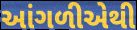
આંગળીએથી